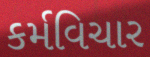
કર્મવિચાર